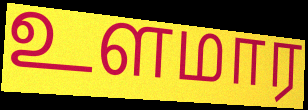
உளமார